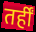
तर्हीं